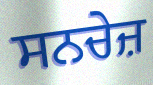
ਸਨਚੇਜ਼